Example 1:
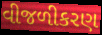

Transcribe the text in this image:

વીજળીકરણ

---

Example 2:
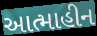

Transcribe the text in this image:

આત્માહીન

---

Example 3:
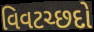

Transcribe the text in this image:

વિવટચ્છદો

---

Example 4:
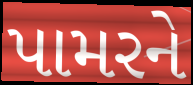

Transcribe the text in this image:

પામરને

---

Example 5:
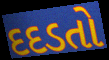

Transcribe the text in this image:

દદડતો